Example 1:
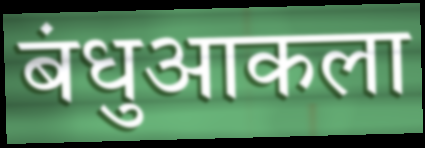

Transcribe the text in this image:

बंधुआकला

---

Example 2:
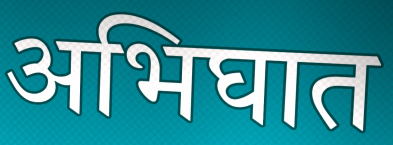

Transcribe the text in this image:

अभिघात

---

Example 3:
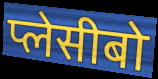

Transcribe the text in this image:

प्लेसीबो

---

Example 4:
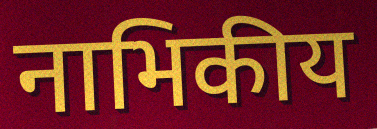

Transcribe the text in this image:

नाभिकीय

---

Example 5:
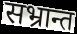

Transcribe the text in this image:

सभ्रान्त